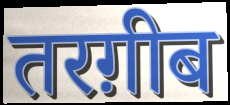
तरग़ीब